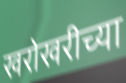
खरोखरीच्या